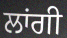
ਲਾਂਗੀ